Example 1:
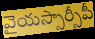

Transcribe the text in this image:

వైయస్సార్సీపీ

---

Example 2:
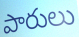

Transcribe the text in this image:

పారులు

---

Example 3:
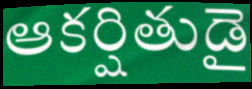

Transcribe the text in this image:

ఆకర్షితుడై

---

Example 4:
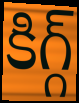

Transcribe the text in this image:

కిగ్గ్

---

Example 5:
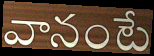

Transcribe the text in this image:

వానంటే